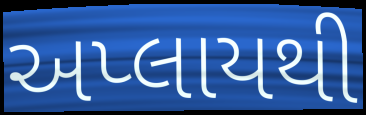
અપ્લાયથી